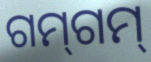
ଗମ୍‌ଗମ୍